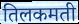
तिलकमती